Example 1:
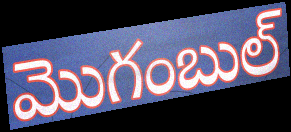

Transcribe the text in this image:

మొగంబుల్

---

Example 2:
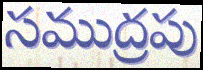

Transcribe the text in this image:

సముద్రపు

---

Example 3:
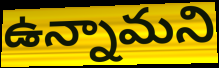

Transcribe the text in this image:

ఉన్నామని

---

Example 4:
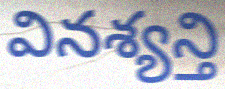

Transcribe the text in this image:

వినశ్యన్తి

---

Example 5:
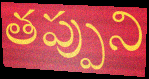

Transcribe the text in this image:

తప్పుని